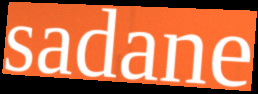
sadane